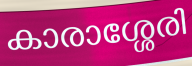
കാരാശ്ശേരി